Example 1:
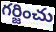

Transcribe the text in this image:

గర్జించు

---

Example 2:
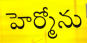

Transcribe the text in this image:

హెర్మోను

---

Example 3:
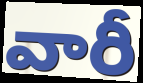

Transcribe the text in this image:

వారీ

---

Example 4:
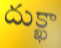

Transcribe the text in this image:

దుక్ఖా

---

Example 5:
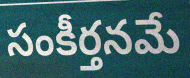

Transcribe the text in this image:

సంకీర్తనమే